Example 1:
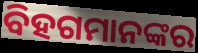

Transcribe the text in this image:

ବିହଗମାନଙ୍କର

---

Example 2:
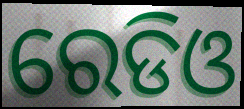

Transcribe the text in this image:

ରେଡିଓ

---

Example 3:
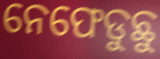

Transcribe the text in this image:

ନେଫେଡୁଛୁ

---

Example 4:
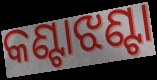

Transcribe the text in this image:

କଣ୍ଟାଝଣ୍ଟା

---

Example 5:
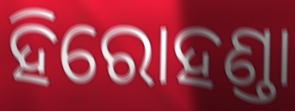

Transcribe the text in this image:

ହିରୋହଣ୍ଡା